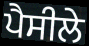
ਪੈਸੀਲੇ